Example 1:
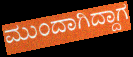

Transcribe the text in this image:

ಮುಂದಾಗಿದ್ದಾಗ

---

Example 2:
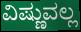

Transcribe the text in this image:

ವಿಷ್ಣುವಲ್ಲ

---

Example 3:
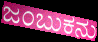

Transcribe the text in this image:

ಜಂಬುಕನು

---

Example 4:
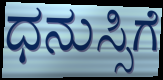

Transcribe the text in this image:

ಧನುಸ್ಸಿಗೆ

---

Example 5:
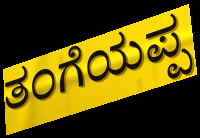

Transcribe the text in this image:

ತಂಗೆಯಪ್ಪ